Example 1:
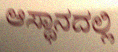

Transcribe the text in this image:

ಆಸ್ಥಾನದಲ್ಲಿ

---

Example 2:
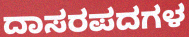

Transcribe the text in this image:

ದಾಸರಪದಗಳ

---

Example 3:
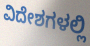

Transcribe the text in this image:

ವಿದೇಶಗಳಲ್ಲಿ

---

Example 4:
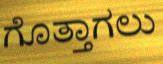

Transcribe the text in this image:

ಗೊತ್ತಾಗಲು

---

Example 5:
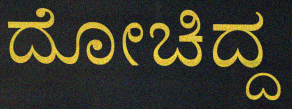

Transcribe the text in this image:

ದೋಚಿದ್ದ